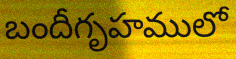
బందీగృహములో